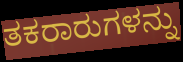
ತಕರಾರುಗಳನ್ನು